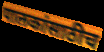
पालकांसाठीच